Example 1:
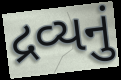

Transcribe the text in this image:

દ્રવ્યનું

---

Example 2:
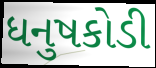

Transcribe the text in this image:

ધનુષકોડી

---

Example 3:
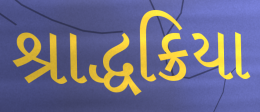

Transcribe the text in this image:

શ્રાદ્ધક્રિયા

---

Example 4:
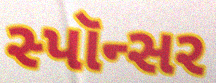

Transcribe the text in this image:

સ્પૉન્સર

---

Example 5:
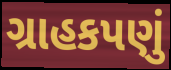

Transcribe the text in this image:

ગ્રાહકપણું